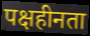
पक्षहीनता